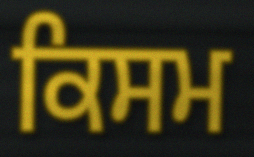
ਕਿਸਮ